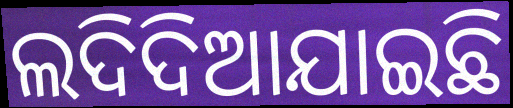
ଲଦିଦିଆଯାଇଛି